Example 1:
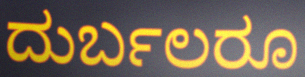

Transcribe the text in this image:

ದುರ್ಬಲರೂ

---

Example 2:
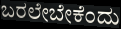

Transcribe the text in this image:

ಬರಲೇಬೇಕೆಂದು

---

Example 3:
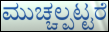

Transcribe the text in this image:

ಮುಚ್ಚಲ್ಪಟ್ಟರೆ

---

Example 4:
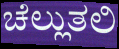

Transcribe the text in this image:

ಚೆಲ್ಲುತಲಿ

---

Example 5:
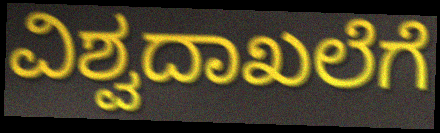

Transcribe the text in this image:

ವಿಶ್ವದಾಖಲೆಗೆ